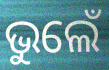
ଭୁଲେଁ